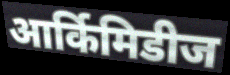
आर्किमिडीज